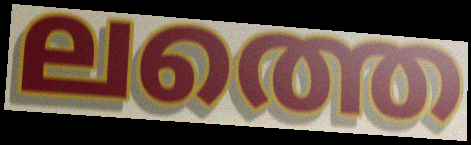
ലത്തെ